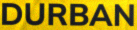
DURBAN